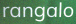
rangalo